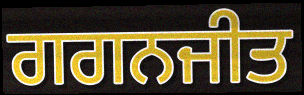
ਗਗਨਜੀਤ